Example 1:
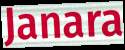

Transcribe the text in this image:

Janara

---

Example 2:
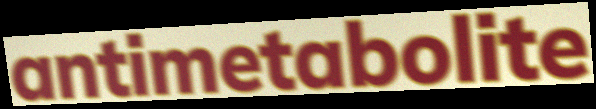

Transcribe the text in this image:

antimetabolite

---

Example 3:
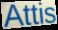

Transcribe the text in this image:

Attis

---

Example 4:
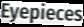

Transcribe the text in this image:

Eyepieces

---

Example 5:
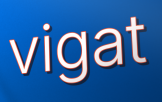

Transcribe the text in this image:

vigat